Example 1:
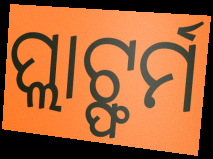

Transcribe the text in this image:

ପ୍ଲାଟ୍ଫର୍ମ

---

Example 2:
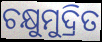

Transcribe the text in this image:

ଚକ୍ଷୁମୁଦ୍ରିତ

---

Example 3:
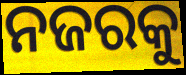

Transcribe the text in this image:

ନଜରକୁ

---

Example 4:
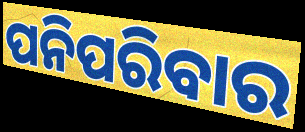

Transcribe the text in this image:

ପନିପରିବାର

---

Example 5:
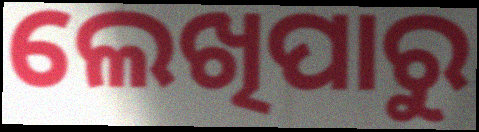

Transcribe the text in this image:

ଲେଖିପାରୁ